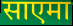
साएमा